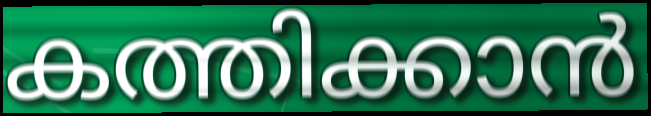
കത്തിക്കാൻ